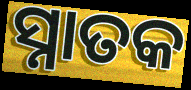
ସ୍ନାତକ